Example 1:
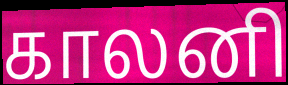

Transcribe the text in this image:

காலனி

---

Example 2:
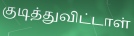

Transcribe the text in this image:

குடித்துவிட்டாள்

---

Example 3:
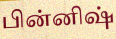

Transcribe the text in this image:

பின்னிஷ்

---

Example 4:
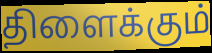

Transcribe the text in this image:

திளைக்கும்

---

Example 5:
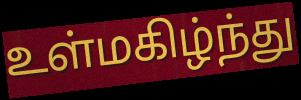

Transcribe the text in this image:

உள்மகிழ்ந்து